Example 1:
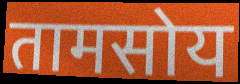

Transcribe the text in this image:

तामसोय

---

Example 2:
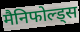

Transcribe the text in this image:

मैनिफोल्ड्स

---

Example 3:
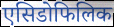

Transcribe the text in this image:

एसिडोफिलिक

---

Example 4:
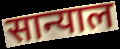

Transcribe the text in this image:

सान्याल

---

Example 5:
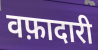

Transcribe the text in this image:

वफ़ादारी